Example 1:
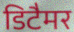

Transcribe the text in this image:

डिटैमर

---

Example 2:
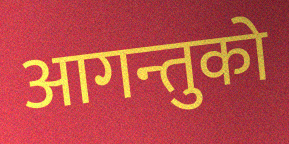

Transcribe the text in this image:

आगन्तुको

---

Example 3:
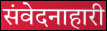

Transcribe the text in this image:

संवेदनाहारी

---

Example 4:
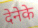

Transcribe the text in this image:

देनेके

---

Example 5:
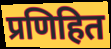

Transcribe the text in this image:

प्रणिहित